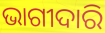
ଭାଗୀଦାରି